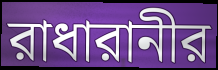
রাধারানীর